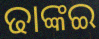
ଢାଙ୍କଇ